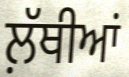
ਲ਼ੱਥੀਆਂ